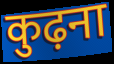
कुढ़ना